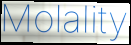
Molality